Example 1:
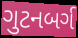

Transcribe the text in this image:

ગુટનબર્ગ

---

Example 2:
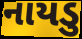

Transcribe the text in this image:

નાયડુ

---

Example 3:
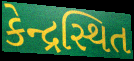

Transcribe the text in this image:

કેન્દ્રસ્થિત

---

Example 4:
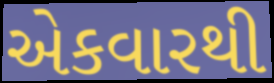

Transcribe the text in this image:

એકવારથી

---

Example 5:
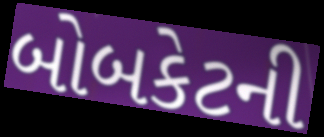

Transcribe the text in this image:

બોબકેટની